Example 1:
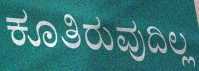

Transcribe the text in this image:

ಕೂತಿರುವುದಿಲ್ಲ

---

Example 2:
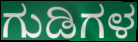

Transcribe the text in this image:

ಗುಡಿಗಳ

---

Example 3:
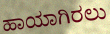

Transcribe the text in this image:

ಹಾಯಾಗಿರಲು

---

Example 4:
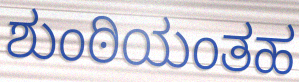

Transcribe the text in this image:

ಶುಂಠಿಯಂತಹ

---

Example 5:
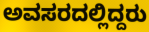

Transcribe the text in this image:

ಅವಸರದಲ್ಲಿದ್ದರು